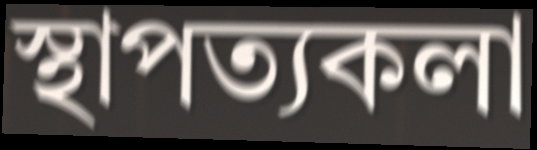
স্থাপত্যকলা